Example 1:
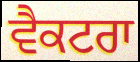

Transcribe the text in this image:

ਵੈਕਟਰਾ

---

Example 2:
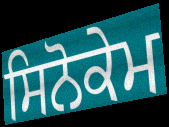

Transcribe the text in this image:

ਸਿਨੋਕੇਮ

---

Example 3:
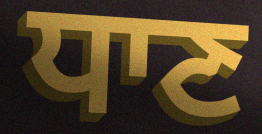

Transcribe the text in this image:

ਧਾਣ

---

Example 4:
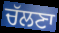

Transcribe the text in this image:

ਚੱਲਣਾ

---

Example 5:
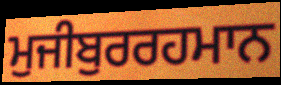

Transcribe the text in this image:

ਮੁਜੀਬੁਰਰਹਮਾਨ